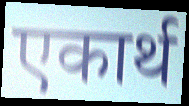
एकार्थ